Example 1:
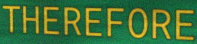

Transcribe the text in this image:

THEREFORE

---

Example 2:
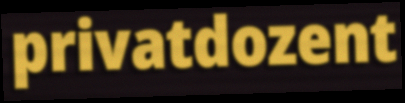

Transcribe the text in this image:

privatdozent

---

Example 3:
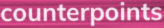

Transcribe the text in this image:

counterpoints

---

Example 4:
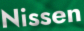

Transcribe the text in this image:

Nissen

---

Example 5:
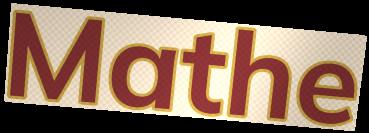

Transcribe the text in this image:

Mathe